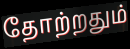
தோற்றதும்